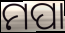
ମପା